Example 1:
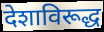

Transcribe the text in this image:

देशाविरूद्ध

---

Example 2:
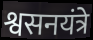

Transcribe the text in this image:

श्वसनयंत्रे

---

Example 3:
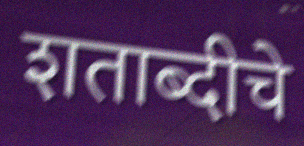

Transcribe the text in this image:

शताब्दीचे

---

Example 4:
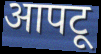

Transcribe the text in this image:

आपटू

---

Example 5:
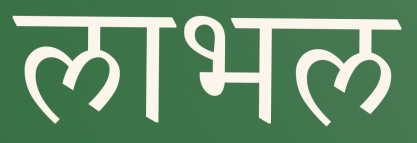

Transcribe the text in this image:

लाभल